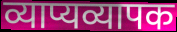
व्याप्यव्यापक